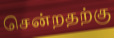
சென்றதற்கு